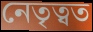
নেতৃত্বত